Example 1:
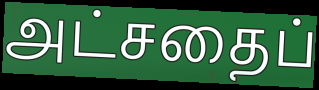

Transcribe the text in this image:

அட்சதைப்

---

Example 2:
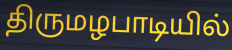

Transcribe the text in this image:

திருமழபாடியில்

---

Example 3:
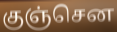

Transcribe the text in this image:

குஞ்சென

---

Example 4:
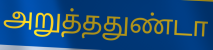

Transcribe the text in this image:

அறுத்ததுண்டா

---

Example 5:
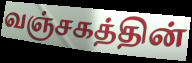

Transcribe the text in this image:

வஞ்சகத்தின்